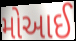
મોઆઈ